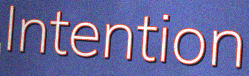
Intention